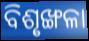
ବିଶୃଙ୍ଖଳା